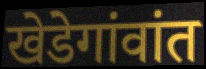
खेडेगांवांत